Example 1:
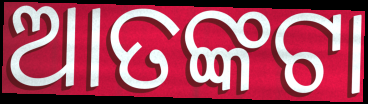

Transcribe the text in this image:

ଆତଙ୍କଟା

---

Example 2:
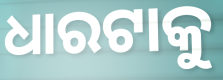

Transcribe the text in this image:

ଧାରଟାକୁ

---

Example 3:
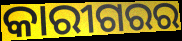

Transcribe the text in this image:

କାରୀଗରର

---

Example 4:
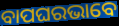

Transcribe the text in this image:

ବାପଘରଭାବେ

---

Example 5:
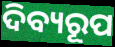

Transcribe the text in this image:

ଦିବ୍ୟରୂପ